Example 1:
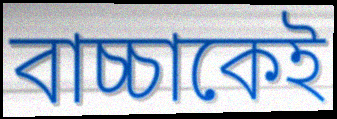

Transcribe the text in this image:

বাচ্চাকেই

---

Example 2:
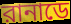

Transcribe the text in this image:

রানাডে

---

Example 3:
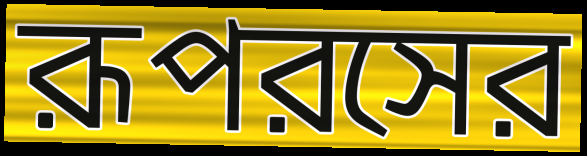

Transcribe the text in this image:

রূপরসের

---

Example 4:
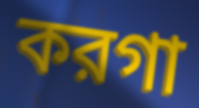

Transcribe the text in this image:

করগা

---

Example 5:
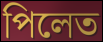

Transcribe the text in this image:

পিলেত